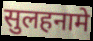
सुलहनामे